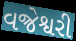
વજ્રેશ્વરી